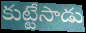
కుట్టేసాడు